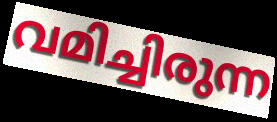
വമിച്ചിരുന്ന